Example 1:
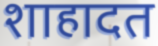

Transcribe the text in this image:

शाहादत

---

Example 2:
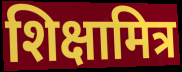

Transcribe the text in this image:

शिक्षामित्र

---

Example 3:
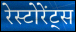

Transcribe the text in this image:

रेस्टोरेंट्स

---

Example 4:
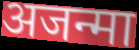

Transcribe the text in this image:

अजन्मा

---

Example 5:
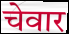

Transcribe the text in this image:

चेवार